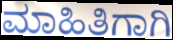
ಮಾಹಿತಿಗಾಗಿ